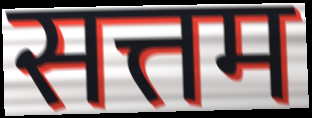
सत्तम